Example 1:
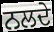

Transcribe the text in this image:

ਨਲਦੇ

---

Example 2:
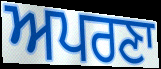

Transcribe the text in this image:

ਅਪਰਣਾ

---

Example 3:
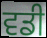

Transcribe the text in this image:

ਵਡੀ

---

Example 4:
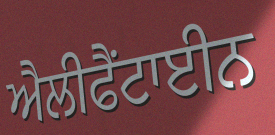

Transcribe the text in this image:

ਐਲੀਫੈਂਟਾਈਨ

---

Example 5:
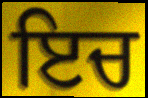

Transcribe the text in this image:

ਇਚ